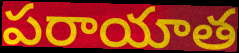
పరాయాత